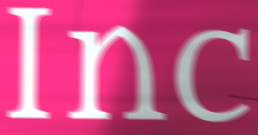
Inc